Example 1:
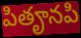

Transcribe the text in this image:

పితౄనపి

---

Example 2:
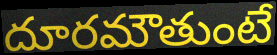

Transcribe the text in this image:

దూరమౌతుంటే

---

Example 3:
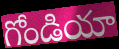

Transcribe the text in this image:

గోండియా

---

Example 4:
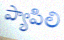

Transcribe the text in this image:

ప్యాపిలి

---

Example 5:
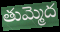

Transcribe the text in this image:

తుమ్మెద